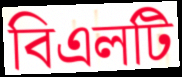
বিএলটি